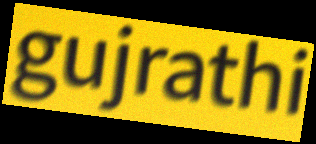
gujrathi